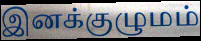
இனக்குழுமம்